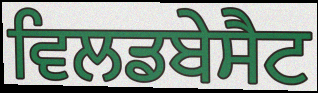
ਵਿਲਡਬੇਸੈਟ